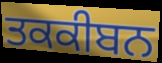
ਤਕਕੀਬਨ